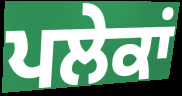
ਪਲੇਕਾਂ